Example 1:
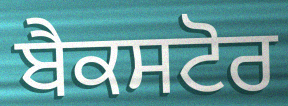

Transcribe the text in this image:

ਬੈਕਸਟੋਰ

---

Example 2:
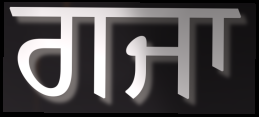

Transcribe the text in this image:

ਗਜਾ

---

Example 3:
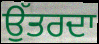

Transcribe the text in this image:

ਉੱਤਰਦਾ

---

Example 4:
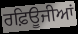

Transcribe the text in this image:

ਰਫ਼ਿਊਜੀਆਂ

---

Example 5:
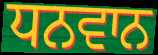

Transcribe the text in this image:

ਧਨਵਾਨ